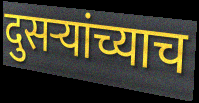
दुसऱ्यांच्याच